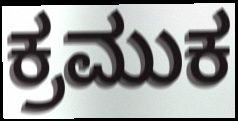
ಕ್ರಮುಕ